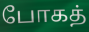
போகத்